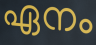
ഏനം